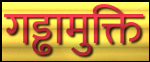
गड्ढामुक्ति